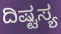
ದಿಷ್ಟಸ್ಯ